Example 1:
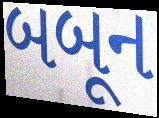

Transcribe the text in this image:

બબૂન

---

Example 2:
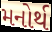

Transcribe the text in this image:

મનોર્થ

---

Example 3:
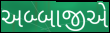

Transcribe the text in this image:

અબ્બાજીએ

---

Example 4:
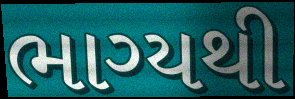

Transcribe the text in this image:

ભાગ્યથી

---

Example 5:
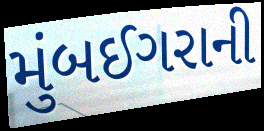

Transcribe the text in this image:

મુંબઈગરાની